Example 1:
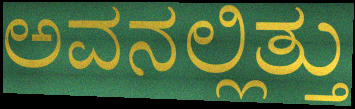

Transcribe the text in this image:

ಅವನಲ್ಲಿತ್ತು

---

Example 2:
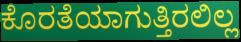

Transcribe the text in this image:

ಕೊರತೆಯಾಗುತ್ತಿರಲಿಲ್ಲ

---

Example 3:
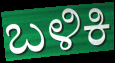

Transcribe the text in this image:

ಬಳಿಕಿ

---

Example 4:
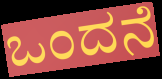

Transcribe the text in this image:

ಒಂದನೆ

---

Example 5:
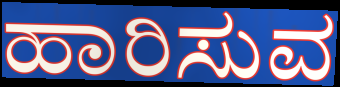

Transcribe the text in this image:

ಹಾರಿಸುವ